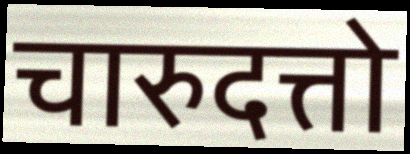
चारुदत्तो